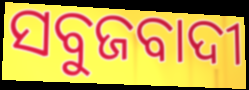
ସବୁଜବାଦୀ